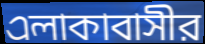
এলাকাবাসীর